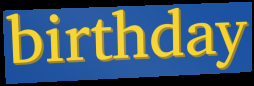
birthday